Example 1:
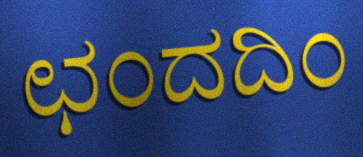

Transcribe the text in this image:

ಛಂದದಿಂ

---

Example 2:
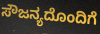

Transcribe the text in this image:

ಸೌಜನ್ಯದೊಂದಿಗೆ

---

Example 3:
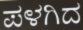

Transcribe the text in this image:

ಪಳಗಿದ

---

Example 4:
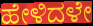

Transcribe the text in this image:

ಹೇಳಿದಳೇ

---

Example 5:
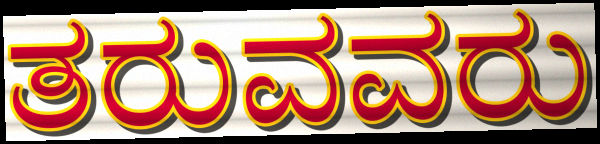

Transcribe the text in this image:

ತರುವವರು